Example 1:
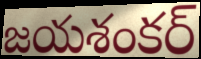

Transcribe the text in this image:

జయశంకర్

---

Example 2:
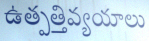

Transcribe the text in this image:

ఉత్పత్తివ్యయాలు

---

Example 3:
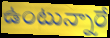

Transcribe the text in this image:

ఉంటున్నారే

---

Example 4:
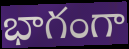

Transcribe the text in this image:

భాగంగా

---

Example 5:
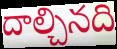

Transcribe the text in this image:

దాల్చినది